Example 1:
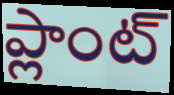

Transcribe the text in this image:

ప్లాంట్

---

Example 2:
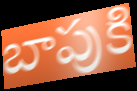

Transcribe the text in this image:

బాపుకి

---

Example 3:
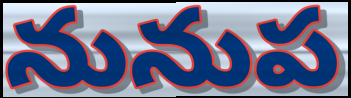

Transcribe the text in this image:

నునుప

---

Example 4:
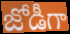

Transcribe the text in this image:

జోడీగా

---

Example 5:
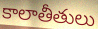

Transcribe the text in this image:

కాలాతీతులు